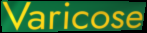
Varicose